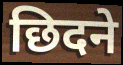
छिदने